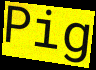
Pig